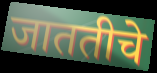
जाततीचे